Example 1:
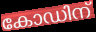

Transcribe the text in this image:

കോഡിന്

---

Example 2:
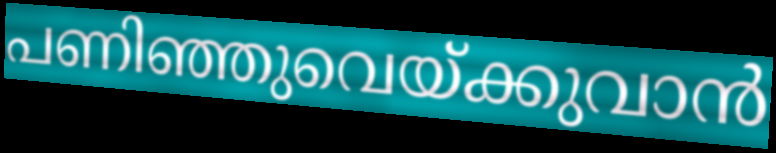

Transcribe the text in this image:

പണിഞ്ഞുവെയ്ക്കുവാൻ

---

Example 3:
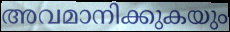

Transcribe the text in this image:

അവമാനിക്കുകയും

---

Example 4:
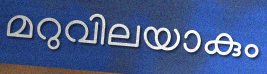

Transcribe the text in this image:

മറുവിലയാകും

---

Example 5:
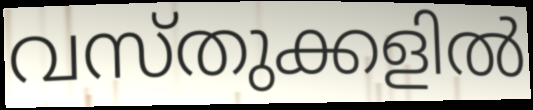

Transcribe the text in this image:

വസ്തുക്കളിൽ